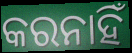
କରନାହିଁ